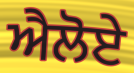
ਐਲੋਏ